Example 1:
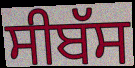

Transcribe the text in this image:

ਸੀਬੱਸ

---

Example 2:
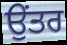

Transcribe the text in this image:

ਉਂਤਰ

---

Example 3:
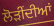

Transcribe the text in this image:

ਲੋੜੀਂਦੀਆਂ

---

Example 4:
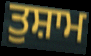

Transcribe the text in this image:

ਤੁਸ਼ਾਮ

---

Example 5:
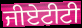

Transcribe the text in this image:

ਜੀਏਟੀਟੀ